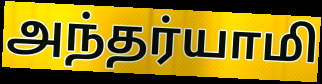
அந்தர்யாமி